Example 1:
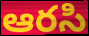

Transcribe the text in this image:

ఆరసి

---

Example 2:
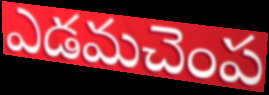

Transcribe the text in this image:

ఎడమచెంప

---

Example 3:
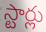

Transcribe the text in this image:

స్టార్లు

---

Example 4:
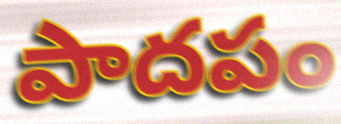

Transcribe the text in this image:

పాదపం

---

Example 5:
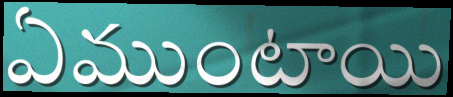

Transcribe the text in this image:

ఏముంటాయి